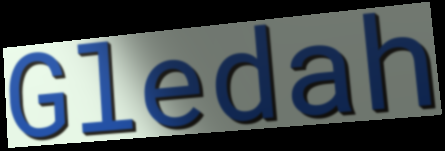
Gledah